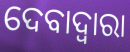
ଦେବାଦ୍ବାରା